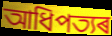
আধিপত্যৰ